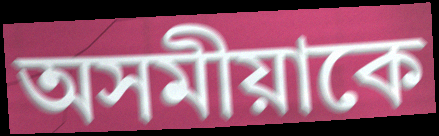
অসমীয়াকে